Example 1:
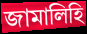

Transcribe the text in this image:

জামালিহি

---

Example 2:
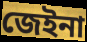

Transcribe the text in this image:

জেইনা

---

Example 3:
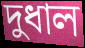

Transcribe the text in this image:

দুধাল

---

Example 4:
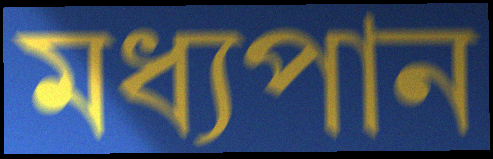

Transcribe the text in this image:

মধ্যপান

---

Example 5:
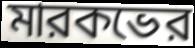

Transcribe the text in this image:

মারকভের